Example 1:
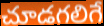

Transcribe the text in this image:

చూడగలిగే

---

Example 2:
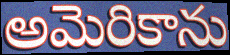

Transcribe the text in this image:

అమెరికాను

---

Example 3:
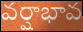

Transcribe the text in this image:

వర్షాభావ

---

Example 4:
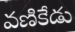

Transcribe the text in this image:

వణికేడు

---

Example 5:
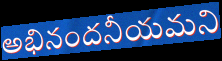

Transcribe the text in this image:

అభినందనీయమని